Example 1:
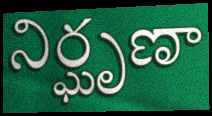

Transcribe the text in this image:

నిర్ఘృణా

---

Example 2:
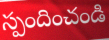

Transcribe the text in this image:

స్పందించండి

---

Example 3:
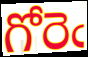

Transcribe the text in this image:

గోరెఁ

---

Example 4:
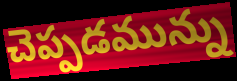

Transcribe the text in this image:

చెప్పడమున్ను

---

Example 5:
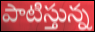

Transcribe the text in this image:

పాటిస్తున్న